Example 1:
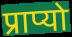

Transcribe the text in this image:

प्राप्यो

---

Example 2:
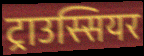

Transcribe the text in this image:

ट्राउस्सियर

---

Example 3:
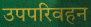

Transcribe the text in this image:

उपपरिवहन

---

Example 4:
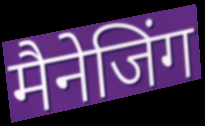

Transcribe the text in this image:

मैनेजिंग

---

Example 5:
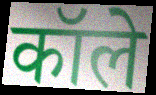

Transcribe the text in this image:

कॉले